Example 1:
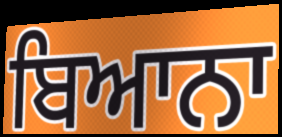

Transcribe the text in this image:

ਬਿਆਨਾ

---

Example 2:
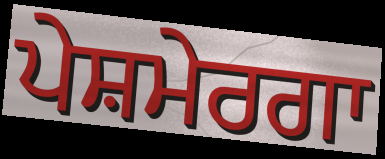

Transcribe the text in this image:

ਪੇਸ਼ਮੇਰਗਾ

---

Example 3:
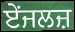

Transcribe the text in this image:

ਏਂਜਲਜ਼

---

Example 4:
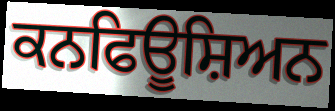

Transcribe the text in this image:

ਕਨਫਿਊਸ਼ਿਅਨ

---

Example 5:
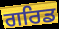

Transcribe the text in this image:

ਗਰਿਡ